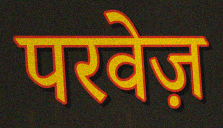
परवेज़